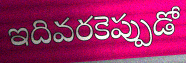
ఇదివరకెప్పుడో